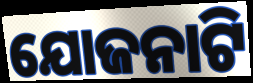
ଯୋଜନାଟି